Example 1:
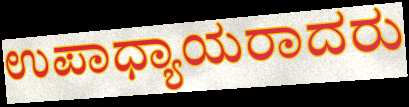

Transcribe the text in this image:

ಉಪಾಧ್ಯಾಯರಾದರು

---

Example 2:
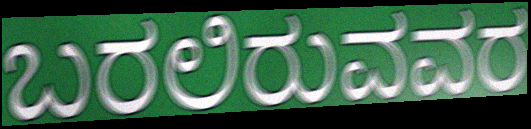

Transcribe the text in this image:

ಬರಲಿರುವವರ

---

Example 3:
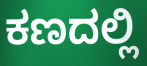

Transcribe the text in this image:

ಕಣದಲ್ಲಿ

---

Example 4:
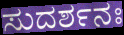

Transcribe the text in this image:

ಸುದರ್ಶನಃ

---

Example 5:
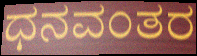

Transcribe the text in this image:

ಧನವಂತರ